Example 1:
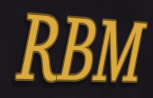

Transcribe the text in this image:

RBM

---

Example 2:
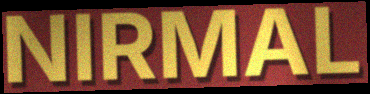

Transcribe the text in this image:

NIRMAL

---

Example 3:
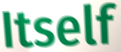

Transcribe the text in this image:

Itself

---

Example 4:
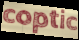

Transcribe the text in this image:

coptic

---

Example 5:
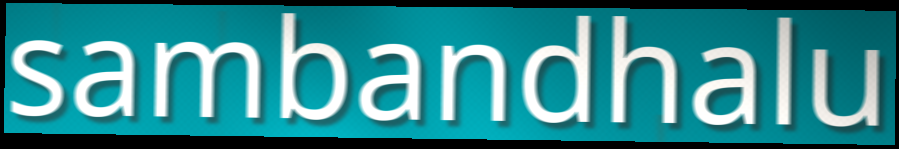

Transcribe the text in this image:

sambandhalu